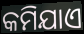
କମିଯାଏ